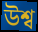
উশ্ব